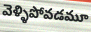
వెళ్ళిపోవడమూ